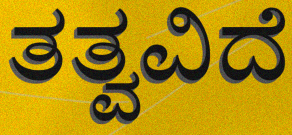
ತತ್ವವಿದೆ